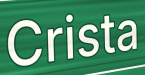
Crista